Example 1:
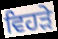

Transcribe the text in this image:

ਵਿਹੜੇ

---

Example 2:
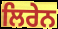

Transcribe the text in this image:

ਲਿਰੇਨ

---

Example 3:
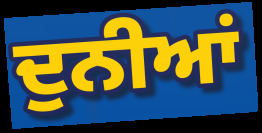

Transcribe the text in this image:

ਦੁਨੀਆਂ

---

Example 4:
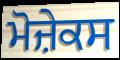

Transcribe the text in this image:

ਮੋਜ਼ੇਕਸ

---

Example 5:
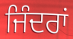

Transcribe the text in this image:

ਜਿੰਦਰਾਂ